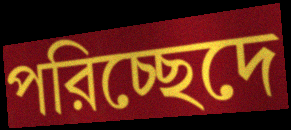
পরিচ্ছেদে